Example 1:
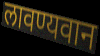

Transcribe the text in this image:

लावण्यवान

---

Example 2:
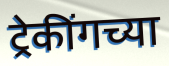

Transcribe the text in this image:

ट्रेकींगच्या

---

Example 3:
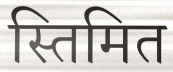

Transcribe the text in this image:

स्तिमित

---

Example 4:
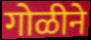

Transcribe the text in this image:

गोळीने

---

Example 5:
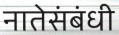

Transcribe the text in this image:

नातेसंबंधी